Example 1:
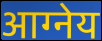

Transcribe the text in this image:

आग्नेय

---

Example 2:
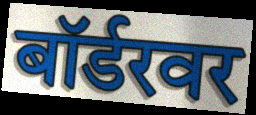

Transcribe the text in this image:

बॉर्डरवर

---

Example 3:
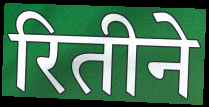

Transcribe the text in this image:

रितीने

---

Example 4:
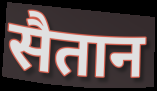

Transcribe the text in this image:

सैतान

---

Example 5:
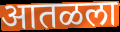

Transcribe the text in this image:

आतळला